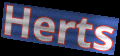
Herts